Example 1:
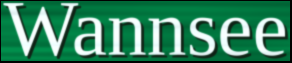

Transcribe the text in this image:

Wannsee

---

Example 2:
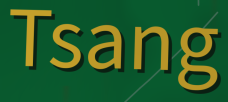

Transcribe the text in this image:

Tsang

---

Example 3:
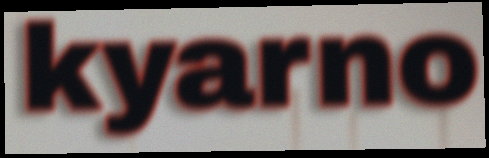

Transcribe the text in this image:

kyarno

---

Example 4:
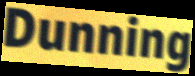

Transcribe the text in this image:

Dunning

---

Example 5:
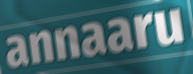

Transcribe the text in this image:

annaaru